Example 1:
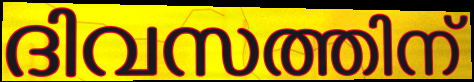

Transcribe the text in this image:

ദിവസത്തിന്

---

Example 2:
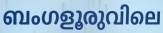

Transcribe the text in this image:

ബംഗളൂരുവിലെ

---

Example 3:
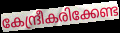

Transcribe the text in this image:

കേന്ദ്രീകരിക്കേണ്ട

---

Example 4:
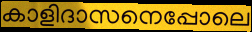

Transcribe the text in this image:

കാളിദാസനെപ്പോലെ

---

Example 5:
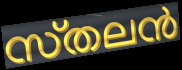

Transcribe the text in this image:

സ്‌തലൻ